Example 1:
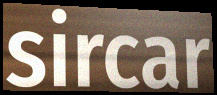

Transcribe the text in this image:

sircar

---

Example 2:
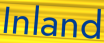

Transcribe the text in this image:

Inland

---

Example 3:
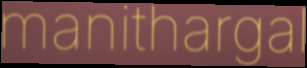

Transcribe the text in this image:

manithargal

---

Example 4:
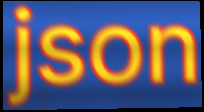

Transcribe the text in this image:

json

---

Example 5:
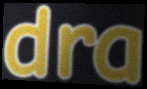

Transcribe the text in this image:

dra